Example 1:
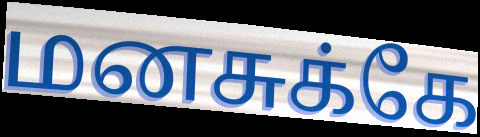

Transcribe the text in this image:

மனசுக்கே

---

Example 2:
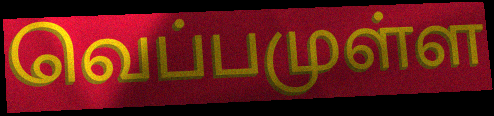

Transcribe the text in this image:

வெப்பமுள்ள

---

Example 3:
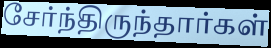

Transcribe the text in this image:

சேர்ந்திருந்தார்கள்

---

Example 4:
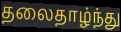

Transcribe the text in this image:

தலைதாழ்ந்து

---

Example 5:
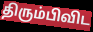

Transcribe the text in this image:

திரும்பிவிட